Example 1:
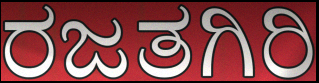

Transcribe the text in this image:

ರಜತಗಿರಿ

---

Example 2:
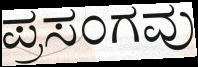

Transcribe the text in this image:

ಪ್ರಸಂಗವು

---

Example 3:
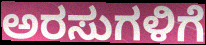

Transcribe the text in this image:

ಅರಸುಗಳಿಗೆ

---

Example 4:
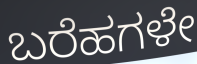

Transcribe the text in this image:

ಬರೆಹಗಳೇ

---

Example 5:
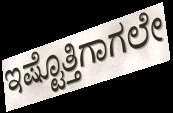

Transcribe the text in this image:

ಇಷ್ಟೊತ್ತಿಗಾಗಲೇ